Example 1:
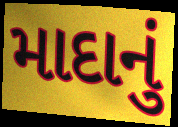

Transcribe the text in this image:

માદાનું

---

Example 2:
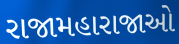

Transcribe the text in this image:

રાજામહારાજાઓ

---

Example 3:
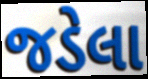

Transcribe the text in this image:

જડેલા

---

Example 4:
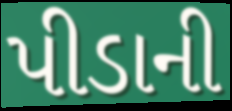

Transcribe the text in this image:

પીડાની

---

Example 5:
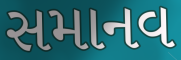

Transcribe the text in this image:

સમાનવ